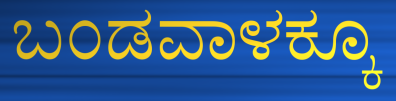
ಬಂಡವಾಳಕ್ಕೂ